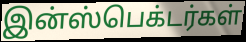
இன்ஸ்பெக்டர்கள்